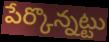
పేర్కొన్నట్టు